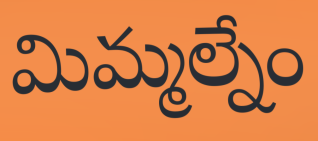
మిమ్మల్నేం